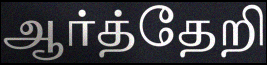
ஆர்த்தேறி